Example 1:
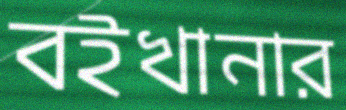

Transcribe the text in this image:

বইখানার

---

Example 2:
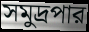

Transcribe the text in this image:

সমুদ্রপার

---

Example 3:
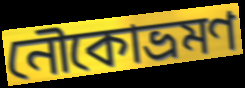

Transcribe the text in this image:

নৌকোভ্রমণ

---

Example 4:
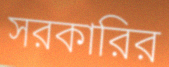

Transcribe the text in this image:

সরকারির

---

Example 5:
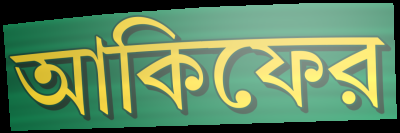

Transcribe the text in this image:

আকিফের